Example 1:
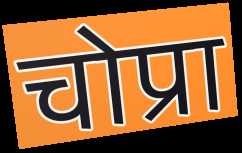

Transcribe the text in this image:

चोप्रा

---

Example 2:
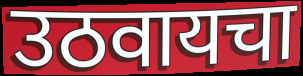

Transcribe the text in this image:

उठवायचा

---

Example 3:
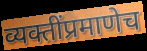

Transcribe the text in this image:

व्यक्तींप्रमाणेच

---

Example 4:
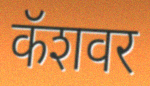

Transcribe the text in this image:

कॅशवर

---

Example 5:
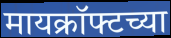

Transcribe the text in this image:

मायक्रॉफ्टच्या